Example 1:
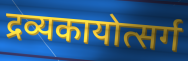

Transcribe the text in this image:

द्रव्यकायोत्सर्ग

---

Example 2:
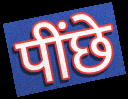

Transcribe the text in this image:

पींछे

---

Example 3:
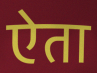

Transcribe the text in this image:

ऐता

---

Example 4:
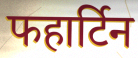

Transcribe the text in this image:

फहार्टिन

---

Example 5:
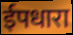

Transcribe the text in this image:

ईपधारा